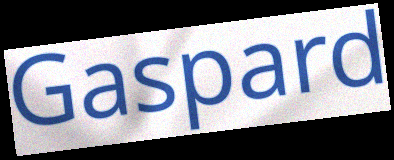
Gaspard